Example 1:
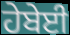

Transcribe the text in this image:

ਹੇਬੇਈ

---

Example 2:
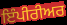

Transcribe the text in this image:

ਇੰਪੀਰੀਅਰ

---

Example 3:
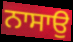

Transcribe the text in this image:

ਨਾਸਾਉ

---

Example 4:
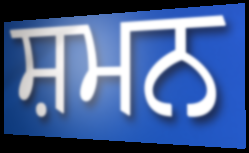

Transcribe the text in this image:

ਸ਼ਮਨ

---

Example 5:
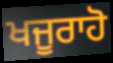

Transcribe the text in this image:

ਖਜੂਰਾਹੋ